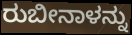
ರುಬೀನಾಳನ್ನು